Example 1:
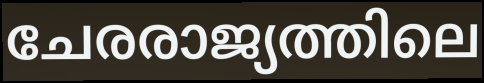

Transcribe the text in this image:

ചേരരാജ്യത്തിലെ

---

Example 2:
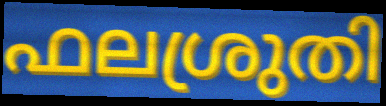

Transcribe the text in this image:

ഫലശ്രുതി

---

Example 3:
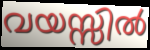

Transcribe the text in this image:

വയസ്സിൽ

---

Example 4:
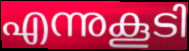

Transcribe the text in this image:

എന്നുകൂടി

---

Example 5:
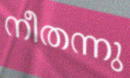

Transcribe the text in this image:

നീതന്നു